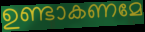
ഉണ്ടാകണമേ